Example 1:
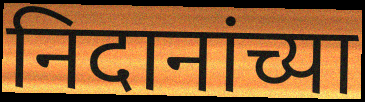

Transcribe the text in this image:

निदानांच्या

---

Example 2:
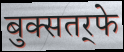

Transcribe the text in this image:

बुक्सतर्फे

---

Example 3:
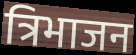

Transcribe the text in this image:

त्रिभाजन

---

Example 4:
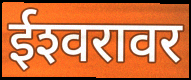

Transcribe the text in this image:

ईश्‍वरावर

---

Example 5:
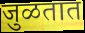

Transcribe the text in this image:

जुळतात